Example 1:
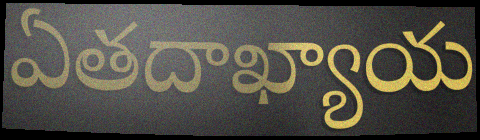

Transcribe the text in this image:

ఏతదాఖ్యాయ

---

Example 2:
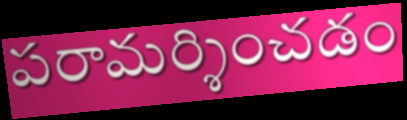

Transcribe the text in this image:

పరామర్శించడం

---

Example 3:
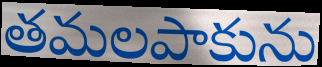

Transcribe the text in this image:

తమలపాకును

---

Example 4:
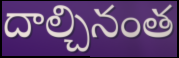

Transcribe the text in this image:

దాల్చినంత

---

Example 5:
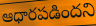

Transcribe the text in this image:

ఆధారపడిందని